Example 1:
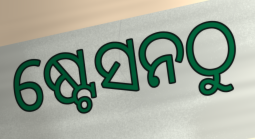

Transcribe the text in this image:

ଷ୍ଟେସନଠୁ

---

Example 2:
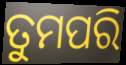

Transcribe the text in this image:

ତୁମପରି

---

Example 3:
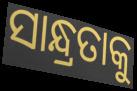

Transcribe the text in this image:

ସାନ୍ଧ୍ରତାକୁ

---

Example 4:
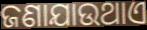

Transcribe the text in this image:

ଜଣାଯାଉଥାଏ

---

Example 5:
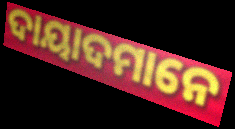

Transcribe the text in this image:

ଦାୟାଦମାନେ